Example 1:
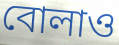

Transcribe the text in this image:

বোলাও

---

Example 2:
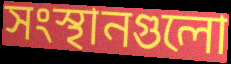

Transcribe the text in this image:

সংস্থানগুলো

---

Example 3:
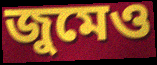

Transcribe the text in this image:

জুমেও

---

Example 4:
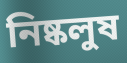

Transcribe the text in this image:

নিষ্কলুষ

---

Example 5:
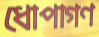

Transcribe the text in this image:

ধোপাগণ